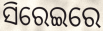
ସିରେଇରେ